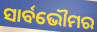
ସାର୍ବଭୌମର